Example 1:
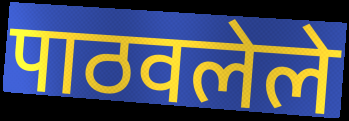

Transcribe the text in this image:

पाठवलेले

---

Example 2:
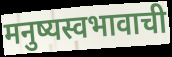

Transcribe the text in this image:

मनुष्यस्वभावाची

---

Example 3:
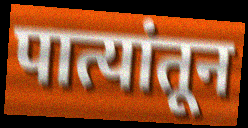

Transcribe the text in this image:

पात्यांतून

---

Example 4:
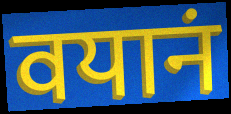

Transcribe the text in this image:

वयानं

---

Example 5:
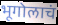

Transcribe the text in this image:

भूगोलाचं